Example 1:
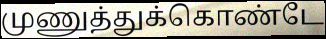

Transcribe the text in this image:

முணுத்துக்கொண்டே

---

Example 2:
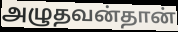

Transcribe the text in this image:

அழுதவன்தான்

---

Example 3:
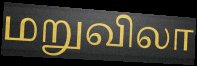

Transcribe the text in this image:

மறுவிலா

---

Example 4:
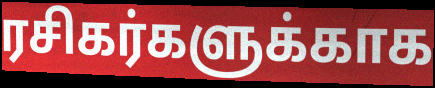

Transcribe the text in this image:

ரசிகர்களுக்காக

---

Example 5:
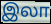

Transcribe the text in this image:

இலா